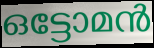
ഒട്ടോമൻ